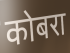
कोबरा